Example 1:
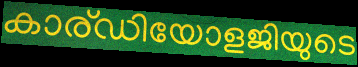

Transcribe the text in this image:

കാര്ഡിയോളജിയുടെ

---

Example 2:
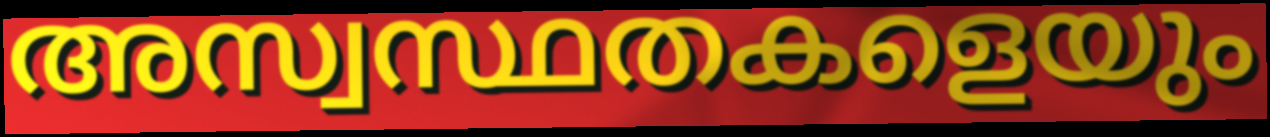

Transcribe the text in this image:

അസ്വസ്ഥതകളെയും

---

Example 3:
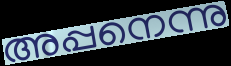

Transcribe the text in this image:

അപ്പനെന്നു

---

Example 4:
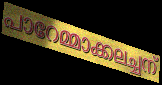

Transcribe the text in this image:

പാറേമ്മാക്കലച്ചന്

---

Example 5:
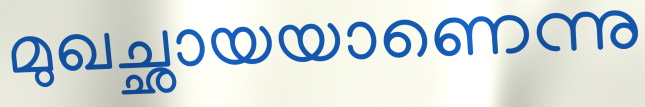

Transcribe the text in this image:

മുഖച്ഛായയാണെന്നു